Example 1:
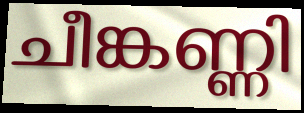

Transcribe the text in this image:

ചീങ്കണ്ണി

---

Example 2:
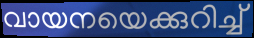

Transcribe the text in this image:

വായനയെക്കുറിച്ച്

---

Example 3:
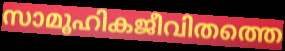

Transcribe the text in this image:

സാമൂഹികജീവിതത്തെ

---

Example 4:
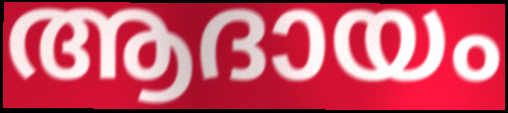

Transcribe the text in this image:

ആദായം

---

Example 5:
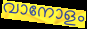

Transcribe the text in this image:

വാനോളം